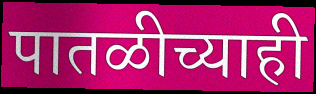
पातळीच्याही